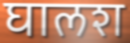
घालश